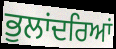
ਭੁਲਾਂਦਰਿਆਂ